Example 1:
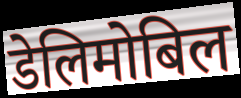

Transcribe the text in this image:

डेलिमोबिल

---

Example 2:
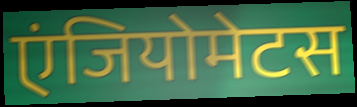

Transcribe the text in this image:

एंजियोमेटस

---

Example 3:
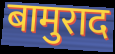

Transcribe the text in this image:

बामुराद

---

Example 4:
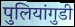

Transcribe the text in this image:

पुलियांगुडी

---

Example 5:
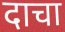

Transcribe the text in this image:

दाचा